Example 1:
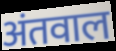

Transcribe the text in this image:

अंतवाल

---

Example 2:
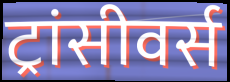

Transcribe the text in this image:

ट्रांसीवर्स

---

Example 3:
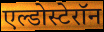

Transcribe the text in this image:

एल्डोस्टेरॉन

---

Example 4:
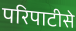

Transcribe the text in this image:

परिपाटीसे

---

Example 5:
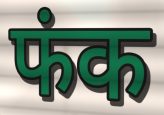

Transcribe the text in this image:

फंक